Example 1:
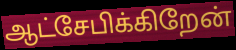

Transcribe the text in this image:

ஆட்சேபிக்கிறேன்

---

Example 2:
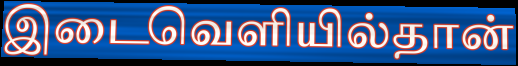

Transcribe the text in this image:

இடைவெளியில்தான்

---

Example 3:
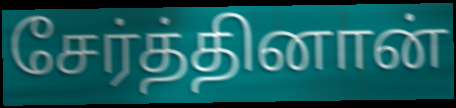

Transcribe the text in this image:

சேர்த்தினான்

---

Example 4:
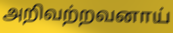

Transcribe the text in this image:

அறிவற்றவனாய்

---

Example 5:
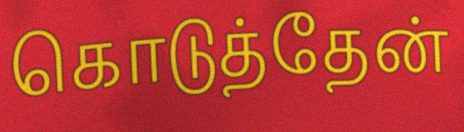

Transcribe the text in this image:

கொடுத்தேன்